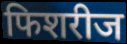
फिशरीज